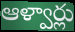
ఆళ్వార్లు